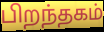
பிறந்தகம்